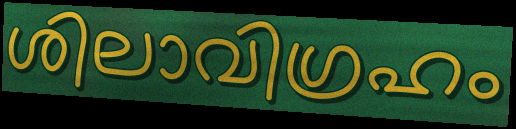
ശിലാവിഗ്രഹം